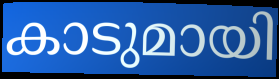
കാടുമായി